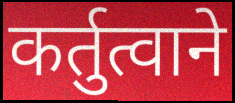
कर्तुत्वाने